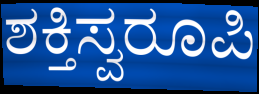
ಶಕ್ತಿಸ್ವರೂಪಿ